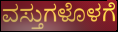
ವಸ್ತುಗಳೊಳಗೆ